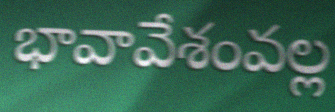
భావావేశంవల్ల